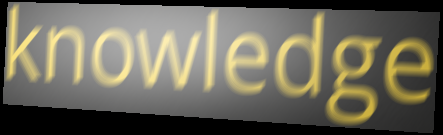
knowledge